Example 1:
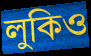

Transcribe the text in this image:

লুকিও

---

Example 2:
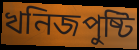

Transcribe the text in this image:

খনিজপুষ্টি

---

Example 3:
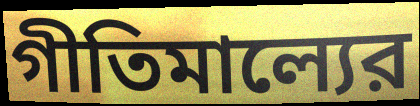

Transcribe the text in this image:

গীতিমাল্যের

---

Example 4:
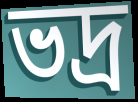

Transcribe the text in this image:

ভদ্র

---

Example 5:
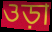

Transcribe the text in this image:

ওড়া